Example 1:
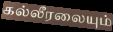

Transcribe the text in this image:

கல்லீரலையும்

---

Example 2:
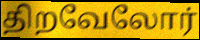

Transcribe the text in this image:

திறவேலோர்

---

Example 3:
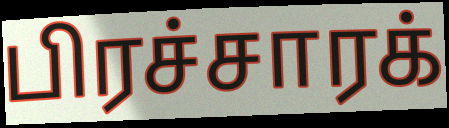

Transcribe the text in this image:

பிரச்சாரக்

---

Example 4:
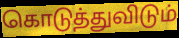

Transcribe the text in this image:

கொடுத்துவிடும்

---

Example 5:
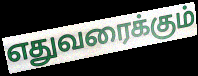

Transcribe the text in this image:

எதுவரைக்கும்